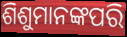
ଶିଶୁମାନଙ୍କପରି